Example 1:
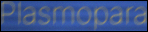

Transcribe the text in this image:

Plasmopara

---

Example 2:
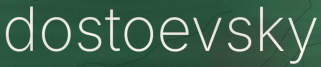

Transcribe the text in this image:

dostoevsky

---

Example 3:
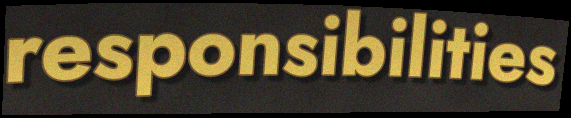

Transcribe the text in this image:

responsibilities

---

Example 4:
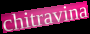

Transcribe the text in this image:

chitravina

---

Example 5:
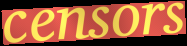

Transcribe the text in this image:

censors